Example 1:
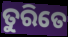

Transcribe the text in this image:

ତୁରିତେ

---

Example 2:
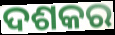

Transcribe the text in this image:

ଦଶକର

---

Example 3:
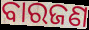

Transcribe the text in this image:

ବାରଜଣ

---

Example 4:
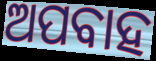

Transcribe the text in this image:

ଅପବାହ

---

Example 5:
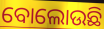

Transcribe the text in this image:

ବୋଲୋଉଛି